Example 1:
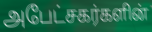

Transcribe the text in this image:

அபேட்சகர்களின்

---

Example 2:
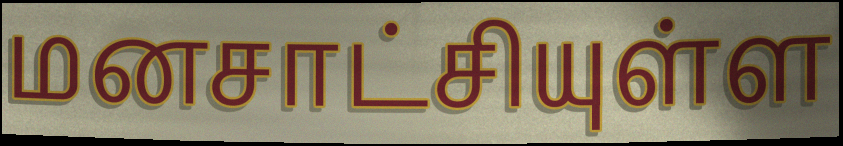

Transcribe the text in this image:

மனசாட்சியுள்ள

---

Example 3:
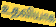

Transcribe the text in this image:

உதவியாக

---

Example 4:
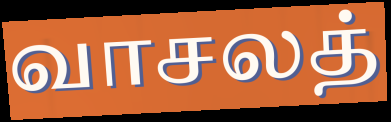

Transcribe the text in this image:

வாசலத்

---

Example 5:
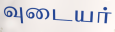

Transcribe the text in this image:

வுடையர்